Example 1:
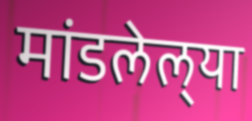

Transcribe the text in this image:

मांडलेल्या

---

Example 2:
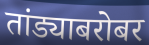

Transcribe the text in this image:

तांड्याबरोबर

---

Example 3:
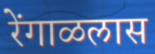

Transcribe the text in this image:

रेंगाळलास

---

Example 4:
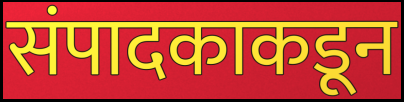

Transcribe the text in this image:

संपादकाकडून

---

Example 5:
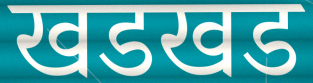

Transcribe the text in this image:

खडखड